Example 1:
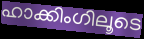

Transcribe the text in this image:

ഹാക്കിംഗിലൂടെ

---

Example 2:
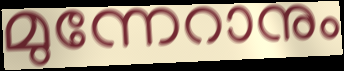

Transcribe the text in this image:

മുന്നേറാനും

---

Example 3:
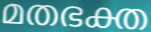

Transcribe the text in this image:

മതഭക്ത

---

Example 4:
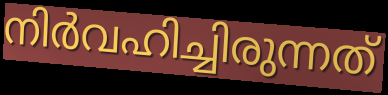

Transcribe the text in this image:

നിർവഹിച്ചിരുന്നത്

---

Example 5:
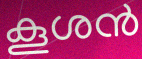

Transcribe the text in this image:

കൂശൻ